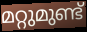
മറ്റുമുണ്ട്